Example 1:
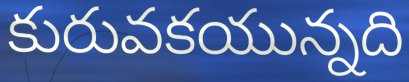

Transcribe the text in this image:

కురువకయున్నది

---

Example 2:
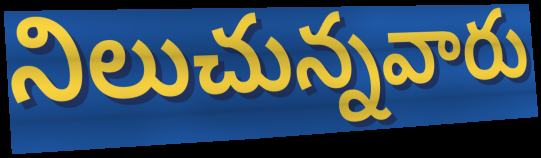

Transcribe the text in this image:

నిలుచున్నవారు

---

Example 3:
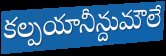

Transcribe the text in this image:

కల్పయానీన్దుమౌలే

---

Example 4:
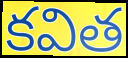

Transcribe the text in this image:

కవిత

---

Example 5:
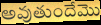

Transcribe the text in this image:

అవుతుందేమొ